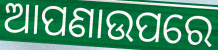
ଆପଣାଉପରେ